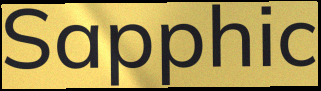
Sapphic